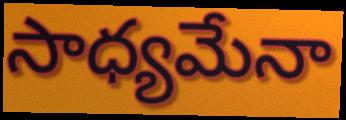
సాధ్యమేనా